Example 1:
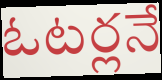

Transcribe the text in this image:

ఓటర్లనే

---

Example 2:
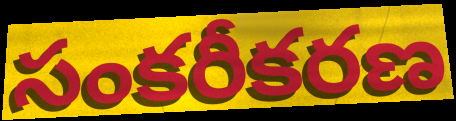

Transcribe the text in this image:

సంకరీకరణ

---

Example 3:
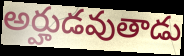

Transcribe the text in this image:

అర్హుడవుతాడు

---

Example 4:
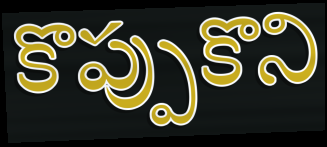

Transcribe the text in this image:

కొప్పుకొని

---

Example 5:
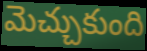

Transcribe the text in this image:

మెచ్చుకుంది